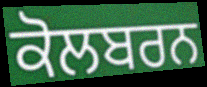
ਕੋਲਬਰਨ